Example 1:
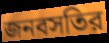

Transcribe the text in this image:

জনবসতির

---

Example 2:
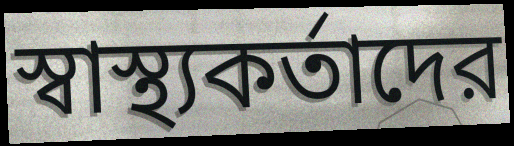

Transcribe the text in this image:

স্বাস্থ্যকর্তাদের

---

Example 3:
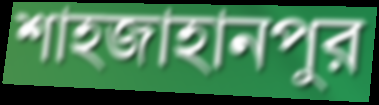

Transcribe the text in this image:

শাহজাহানপুর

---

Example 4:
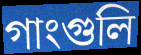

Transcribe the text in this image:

গাংগুলি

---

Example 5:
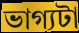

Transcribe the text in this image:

ভাগ্যটা